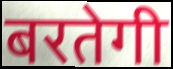
बरतेगी